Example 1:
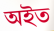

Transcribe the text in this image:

অইত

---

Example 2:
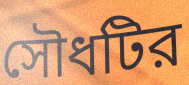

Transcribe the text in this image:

সৌধটির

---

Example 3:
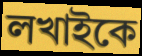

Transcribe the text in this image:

লখাইকে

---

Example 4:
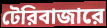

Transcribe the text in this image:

টেরিবাজারে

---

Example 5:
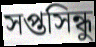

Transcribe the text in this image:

সপ্তসিন্ধু